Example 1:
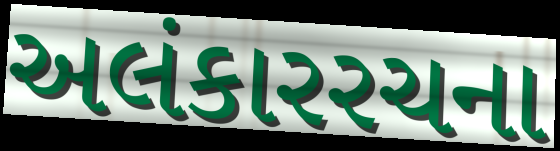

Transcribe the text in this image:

અલંકારરચના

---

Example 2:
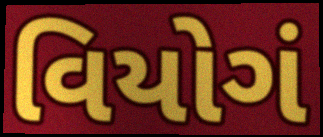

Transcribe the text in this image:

વિયોગં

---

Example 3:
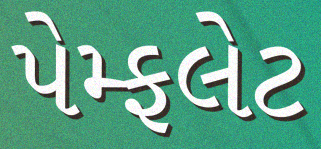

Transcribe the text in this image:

પેમ્ફલેટ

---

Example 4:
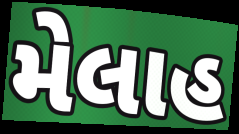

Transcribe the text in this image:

મેલાહ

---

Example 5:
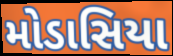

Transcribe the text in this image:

મોડાસિયા